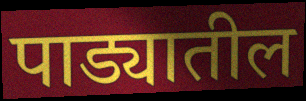
पाड्यातील